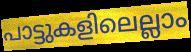
പാട്ടുകളിലെല്ലാം